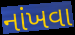
નાંખવા